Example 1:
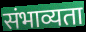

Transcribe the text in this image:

संभाव्यता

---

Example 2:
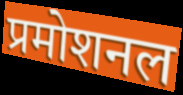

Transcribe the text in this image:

प्रमोशनल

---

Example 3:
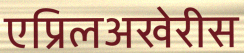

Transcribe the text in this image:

एप्रिलअखेरीस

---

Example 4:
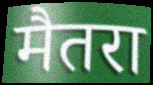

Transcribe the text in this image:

मैतरा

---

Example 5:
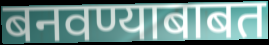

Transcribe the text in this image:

बनवण्याबाबत